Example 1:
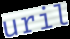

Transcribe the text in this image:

uril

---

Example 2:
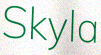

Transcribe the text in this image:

Skyla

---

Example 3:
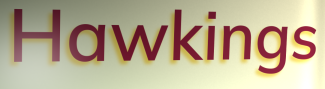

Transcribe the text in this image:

Hawkings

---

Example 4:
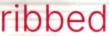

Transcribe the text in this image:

ribbed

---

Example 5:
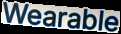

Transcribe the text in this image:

Wearable